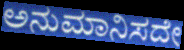
ಅನುಮಾನಿಸದೇ